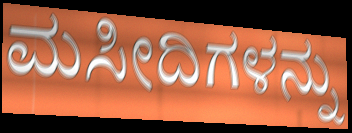
ಮಸೀದಿಗಳನ್ನು